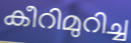
കീറിമുറിച്ച